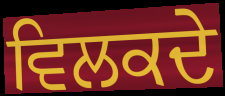
ਵਿਲਕਦੇ